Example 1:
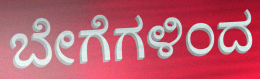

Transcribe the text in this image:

ಬೇಗೆಗಳಿಂದ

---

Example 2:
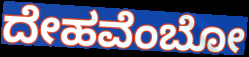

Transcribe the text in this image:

ದೇಹವೆಂಬೋ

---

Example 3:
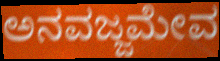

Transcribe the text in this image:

ಅನವಜ್ಜಮೇವ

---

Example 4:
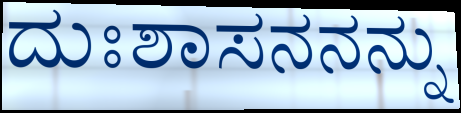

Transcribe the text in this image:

ದುಃಶಾಸನನನ್ನು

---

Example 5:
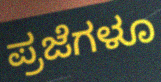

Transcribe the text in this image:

ಪ್ರಜೆಗಳೂ